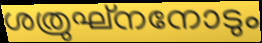
ശത്രുഘ്നനോടും